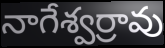
నాగేశ్వర్రావు